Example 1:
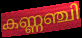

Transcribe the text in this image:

കണ്ണഞ്ചി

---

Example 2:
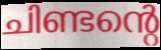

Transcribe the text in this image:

ചിണ്ടന്റെ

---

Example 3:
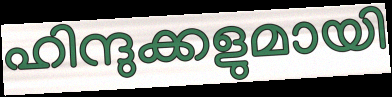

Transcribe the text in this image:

ഹിന്ദുക്കളുമായി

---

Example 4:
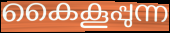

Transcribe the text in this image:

കൈകൂപ്പുന്ന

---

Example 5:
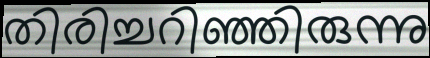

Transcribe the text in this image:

തിരിച്ചറിഞ്ഞിരുന്നു